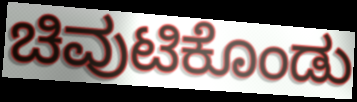
ಚಿವುಟಿಕೊಂಡು